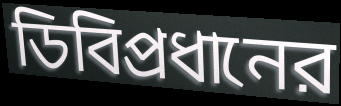
ডিবিপ্রধানের